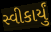
સ્વીકાર્યું